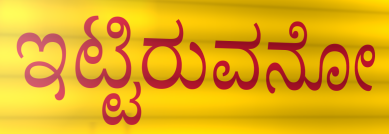
ಇಟ್ಟಿರುವನೋ